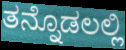
ತನ್ನೊಡಲಲ್ಲಿ